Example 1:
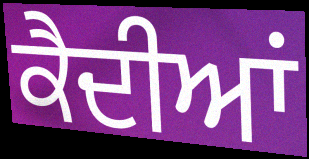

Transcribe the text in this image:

ਕੈਦੀਆਂ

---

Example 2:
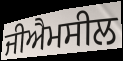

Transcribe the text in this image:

ਜੀਐਮਸੀਲ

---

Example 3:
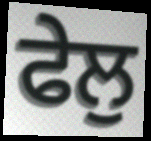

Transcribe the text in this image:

ਫੇਲੁ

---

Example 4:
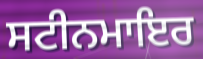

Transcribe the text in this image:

ਸਟੀਨਮਾਇਰ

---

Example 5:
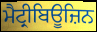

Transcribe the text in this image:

ਮੈਟ੍ਰੀਬਿਊਜ਼ਿਨ